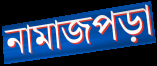
নামাজপড়া